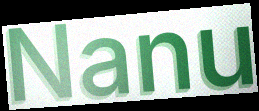
Nanu